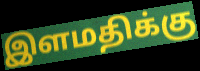
இளமதிக்கு